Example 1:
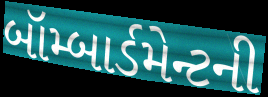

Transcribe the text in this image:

બૉમ્બાર્ડમેન્ટની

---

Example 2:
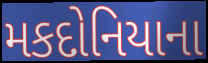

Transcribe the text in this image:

મકદોનિયાના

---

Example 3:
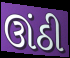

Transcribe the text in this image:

ઊંઠી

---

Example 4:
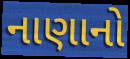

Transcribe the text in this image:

નાણાનો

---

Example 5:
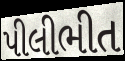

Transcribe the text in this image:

પીલીભીત